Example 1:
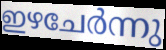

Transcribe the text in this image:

ഇഴചേർന്നു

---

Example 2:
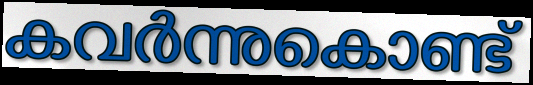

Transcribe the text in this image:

കവർന്നുകൊണ്ട്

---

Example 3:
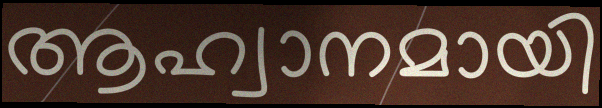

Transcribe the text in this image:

ആഹ്വാനമായി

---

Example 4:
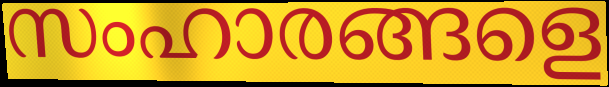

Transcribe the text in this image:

സംഹാരങ്ങളെ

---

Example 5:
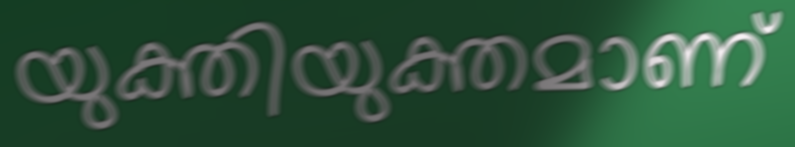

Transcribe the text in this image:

യുക്തിയുക്തമാണ്